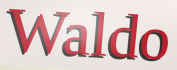
Waldo